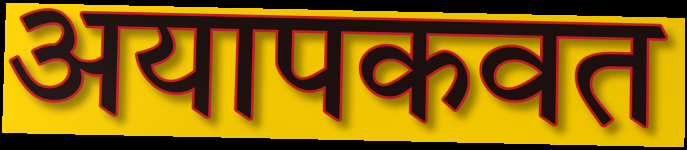
अयापकवत